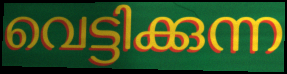
വെട്ടിക്കുന്ന